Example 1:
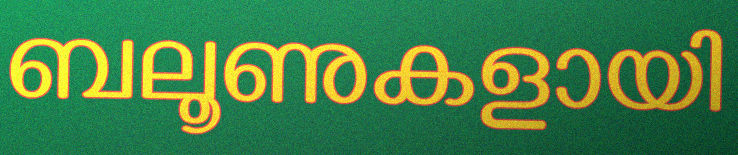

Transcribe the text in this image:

ബലൂണുകളായി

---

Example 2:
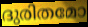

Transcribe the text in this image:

ദുരിതമോ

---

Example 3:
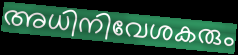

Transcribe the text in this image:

അധിനിവേശകരും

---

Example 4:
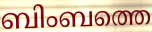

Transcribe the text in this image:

ബിംബത്തെ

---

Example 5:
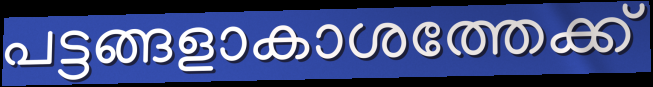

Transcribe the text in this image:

പട്ടങ്ങളാകാശത്തേക്ക്